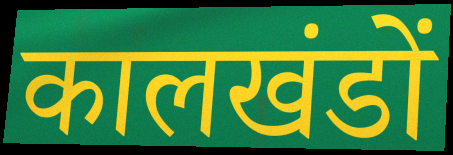
कालखंडों